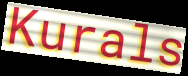
Kurals